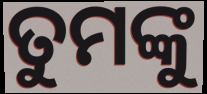
ତୁମଙ୍କୁ